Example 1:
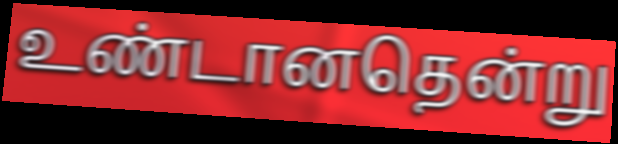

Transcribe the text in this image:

உண்டானதென்று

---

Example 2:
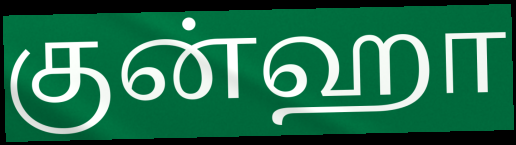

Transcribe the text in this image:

குன்ஹா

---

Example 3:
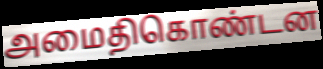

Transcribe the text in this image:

அமைதிகொண்டன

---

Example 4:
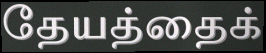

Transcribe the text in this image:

தேயத்தைக்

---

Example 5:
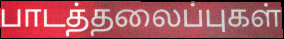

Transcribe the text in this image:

பாடத்தலைப்புகள்